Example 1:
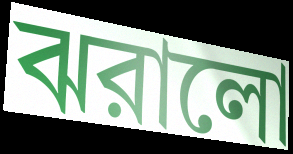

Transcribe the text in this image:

ঝরালো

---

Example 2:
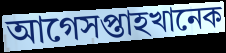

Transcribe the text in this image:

আগেসপ্তাহখানেক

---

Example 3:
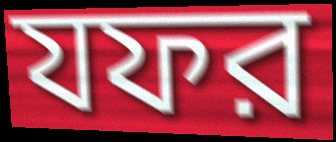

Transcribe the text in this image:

যফর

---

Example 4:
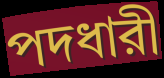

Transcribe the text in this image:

পদধারী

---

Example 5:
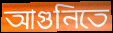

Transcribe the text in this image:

আগুনিতে